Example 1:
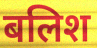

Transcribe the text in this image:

बलिश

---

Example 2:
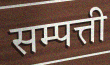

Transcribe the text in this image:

सम्पत्ती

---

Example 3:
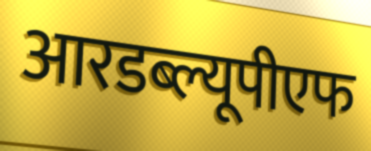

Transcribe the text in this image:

आरडब्ल्यूपीएफ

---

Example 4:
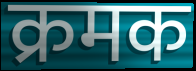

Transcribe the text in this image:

क्रमक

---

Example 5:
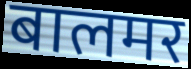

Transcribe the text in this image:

बालमर